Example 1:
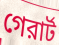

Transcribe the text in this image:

গেরার্ট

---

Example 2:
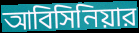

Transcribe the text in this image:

আবিসিনিয়ার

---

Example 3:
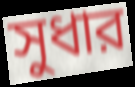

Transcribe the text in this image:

সুধার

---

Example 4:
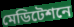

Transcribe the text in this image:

মেডিটেশনে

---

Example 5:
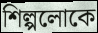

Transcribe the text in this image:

শিল্পলোকে